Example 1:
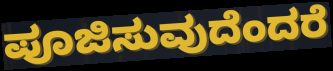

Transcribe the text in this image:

ಪೂಜಿಸುವುದೆಂದರೆ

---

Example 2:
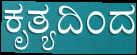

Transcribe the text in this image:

ಕೃತ್ಯದಿಂದ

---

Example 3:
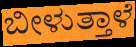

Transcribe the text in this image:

ಬೀಳುತ್ತಾಳೆ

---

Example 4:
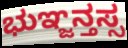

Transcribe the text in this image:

ಭುಞ್ಜನ್ತಸ್ಸ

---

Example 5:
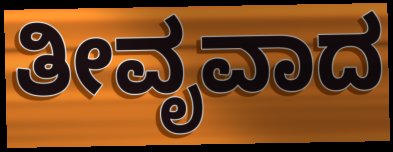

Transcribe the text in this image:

ತೀವೃವಾದ